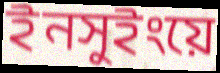
ইনসুইংয়ে